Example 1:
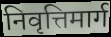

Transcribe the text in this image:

निवृत्तिमार्ग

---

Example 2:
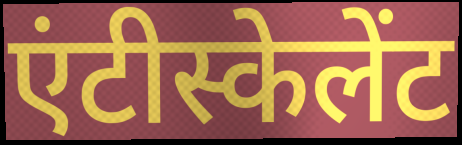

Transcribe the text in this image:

एंटीस्केलेंट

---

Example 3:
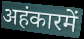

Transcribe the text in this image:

अहंकारमें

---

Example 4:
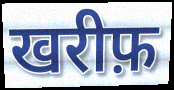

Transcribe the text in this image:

खरीफ़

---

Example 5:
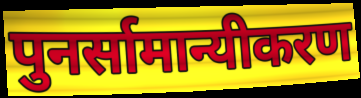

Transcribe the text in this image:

पुनर्सामान्यीकरण